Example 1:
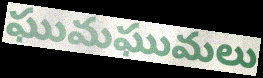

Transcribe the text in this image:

ఘుమఘుమలు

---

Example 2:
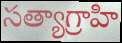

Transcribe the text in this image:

సత్యాగ్రాహి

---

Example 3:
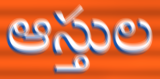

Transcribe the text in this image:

ఆస్తుల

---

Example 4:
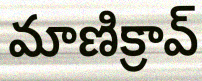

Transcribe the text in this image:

మాణిక్రావ్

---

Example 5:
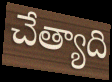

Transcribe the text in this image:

చేత్యాది